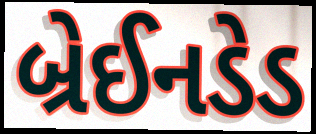
બ્રેઈનડેડ